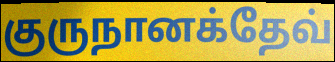
குருநானக்தேவ்